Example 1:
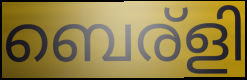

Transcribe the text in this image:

ബെര്ളി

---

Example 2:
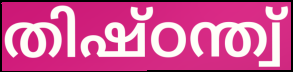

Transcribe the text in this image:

തിഷ്ഠന്ത്വ്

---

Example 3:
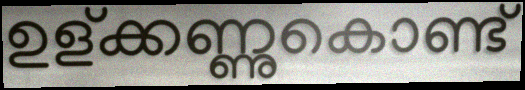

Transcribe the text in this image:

ഉള്ക്കണ്ണുകൊണ്ട്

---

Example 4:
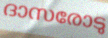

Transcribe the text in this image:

ദാസരോടു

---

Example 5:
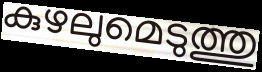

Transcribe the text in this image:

കുഴലുമെടുത്തു